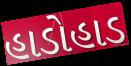
હાડોહાડ